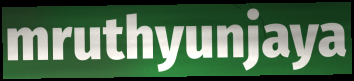
mruthyunjaya